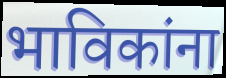
भाविकांना